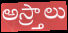
అస్ర్తాలు